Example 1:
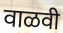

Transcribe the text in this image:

वाळवी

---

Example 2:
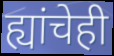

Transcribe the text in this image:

ह्यांचेही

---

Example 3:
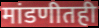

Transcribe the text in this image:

मांडणीतही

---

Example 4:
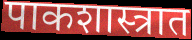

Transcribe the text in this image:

पाकशास्त्रात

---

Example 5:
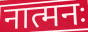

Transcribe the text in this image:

नात्मनः